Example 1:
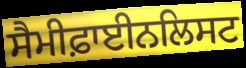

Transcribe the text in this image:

ਸੈਮੀਫ਼ਾਈਨਲਿਸਟ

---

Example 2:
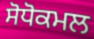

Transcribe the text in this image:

ਸੋਧੋਕਮਲ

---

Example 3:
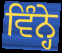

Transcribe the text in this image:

ਵਿੰਨ੍ਹੇ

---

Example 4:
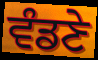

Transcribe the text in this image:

ਵੰਡਣੇ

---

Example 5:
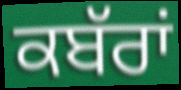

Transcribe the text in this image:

ਕਬੱਰਾਂ